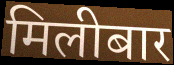
मिलीबार